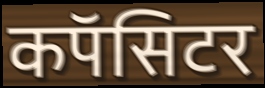
कपॅसिटर